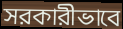
সরকারীভাবে